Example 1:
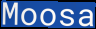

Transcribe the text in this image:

Moosa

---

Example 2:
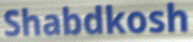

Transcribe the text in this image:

Shabdkosh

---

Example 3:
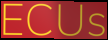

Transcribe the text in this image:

ECUs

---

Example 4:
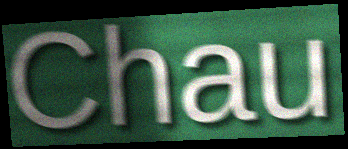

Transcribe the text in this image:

Chau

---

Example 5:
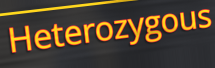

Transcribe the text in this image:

Heterozygous